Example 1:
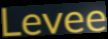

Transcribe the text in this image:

Levee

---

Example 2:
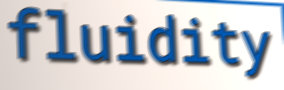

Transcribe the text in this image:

fluidity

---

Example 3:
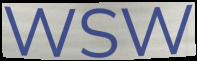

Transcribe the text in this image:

WSW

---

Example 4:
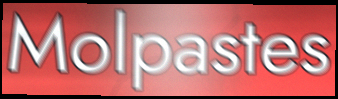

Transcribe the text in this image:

Molpastes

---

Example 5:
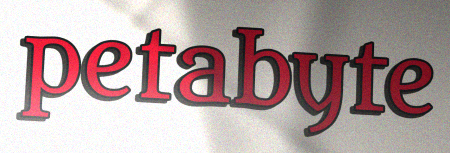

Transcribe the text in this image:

petabyte